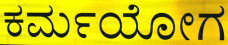
ಕರ್ಮಯೋಗ